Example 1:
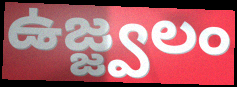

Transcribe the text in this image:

ఉజ్జ్వలం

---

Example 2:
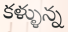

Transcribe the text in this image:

కళ్ళున్న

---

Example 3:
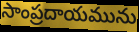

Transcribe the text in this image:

సాంప్రదాయమును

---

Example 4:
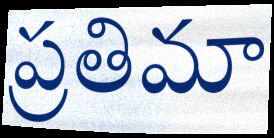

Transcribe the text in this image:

ప్రతిమా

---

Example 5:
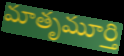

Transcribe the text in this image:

మాతృమూర్తి